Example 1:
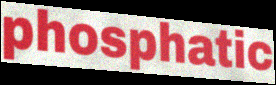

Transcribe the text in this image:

phosphatic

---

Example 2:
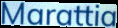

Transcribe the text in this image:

Marattia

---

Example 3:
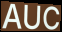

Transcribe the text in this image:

AUC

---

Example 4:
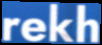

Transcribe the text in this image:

rekh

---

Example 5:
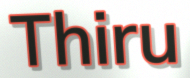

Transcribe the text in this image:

Thiru